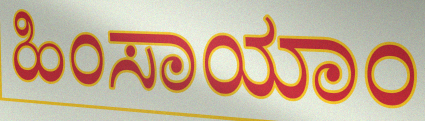
ಹಿಂಸಾಯಾಂ